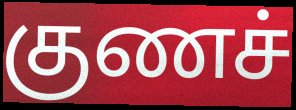
குணச்